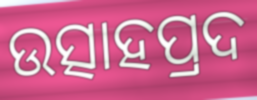
ଉତ୍ସାହପ୍ରଦ